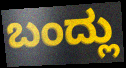
ಬಂದ್ಲು